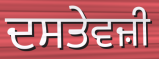
ਦਸਤੇਵਜ਼ੀ